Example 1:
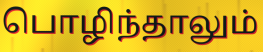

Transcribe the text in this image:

பொழிந்தாலும்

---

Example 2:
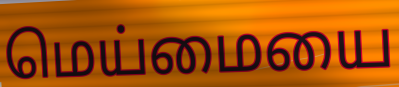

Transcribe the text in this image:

மெய்மையை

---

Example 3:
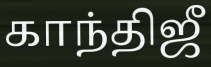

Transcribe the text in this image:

காந்திஜீ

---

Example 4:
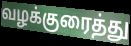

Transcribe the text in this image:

வழக்குரைத்து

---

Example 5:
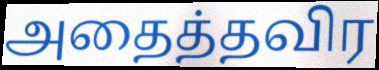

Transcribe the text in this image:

அதைத்தவிர